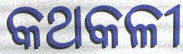
କଥକଳୀ